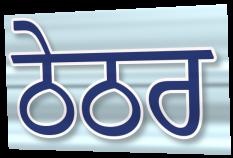
ਠੇਠਰ